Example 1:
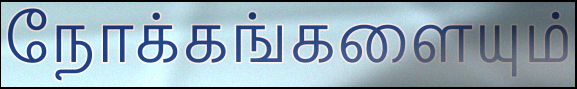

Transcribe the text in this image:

நோக்கங்களையும்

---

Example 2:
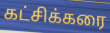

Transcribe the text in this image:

கட்சிக்கரை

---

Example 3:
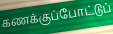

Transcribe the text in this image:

கணக்குப்போட்டுப்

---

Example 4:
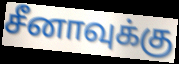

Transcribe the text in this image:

சீனாவுக்கு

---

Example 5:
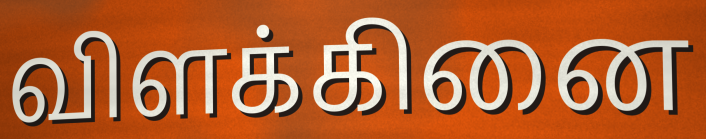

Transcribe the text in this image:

விளக்கினை